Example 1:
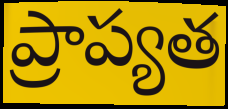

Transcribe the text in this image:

ప్రాప్యత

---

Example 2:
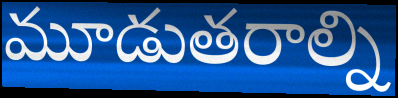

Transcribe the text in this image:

మూడుతరాల్ని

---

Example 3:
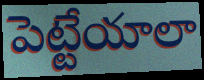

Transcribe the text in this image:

పెట్టేయాలా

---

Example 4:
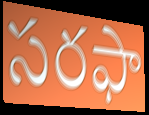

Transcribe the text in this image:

సరఫా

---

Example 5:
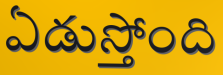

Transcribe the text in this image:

ఏడుస్తోంది